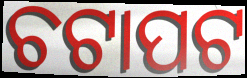
ଚଟାପଟ